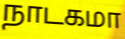
நாடகமா